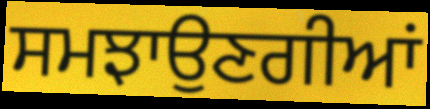
ਸਮਝਾਉਣਗੀਆਂ